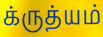
க்ருத்யம்